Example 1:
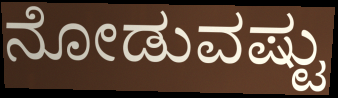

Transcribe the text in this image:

ನೋಡುವಷ್ಟು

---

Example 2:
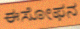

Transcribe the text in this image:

ಈಸೋಫನ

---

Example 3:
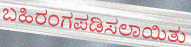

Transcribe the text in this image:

ಬಹಿರಂಗಪಡಿಸಲಾಯಿತು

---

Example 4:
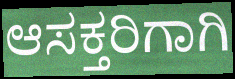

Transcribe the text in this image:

ಆಸಕ್ತರಿಗಾಗಿ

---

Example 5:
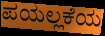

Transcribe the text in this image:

ಪಯಲ್ಲಕೆಯ